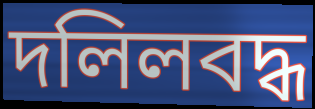
দলিলবদ্ধ